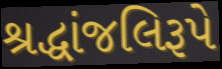
શ્રદ્ધાંજલિરૂપે